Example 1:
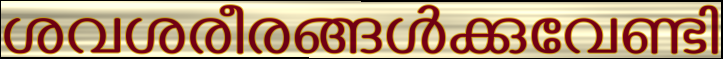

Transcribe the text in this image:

ശവശരീരങ്ങൾക്കുവേണ്ടി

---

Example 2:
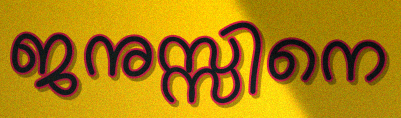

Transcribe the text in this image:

ജനുസ്സിനെ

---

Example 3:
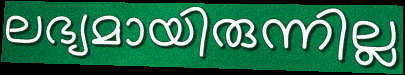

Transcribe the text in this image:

ലഭ്യമായിരുന്നില്ല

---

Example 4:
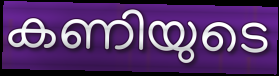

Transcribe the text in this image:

കണിയുടെ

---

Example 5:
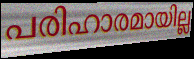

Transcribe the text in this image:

പരിഹാരമായില്ല